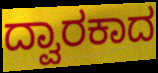
ದ್ವಾರಕಾದ